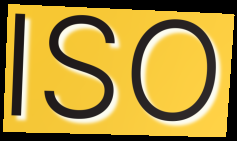
ISO